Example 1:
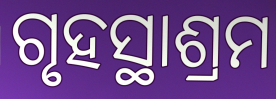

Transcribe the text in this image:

ଗୃହସ୍ଥାଶ୍ରମ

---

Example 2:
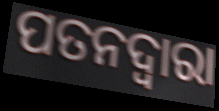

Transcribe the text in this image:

ପତନଦ୍ଵାରା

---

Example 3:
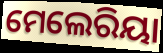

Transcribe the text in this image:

ମେଲେରିୟା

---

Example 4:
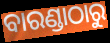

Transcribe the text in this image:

ବାରଣ୍ଡାଠାରୁ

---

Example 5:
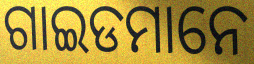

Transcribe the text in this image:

ଗାଇଡମାନେ